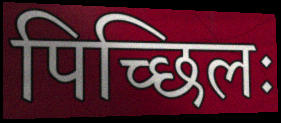
पिच्छिलः